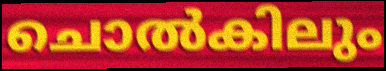
ചൊൽകിലും